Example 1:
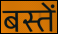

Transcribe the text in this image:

बस्तें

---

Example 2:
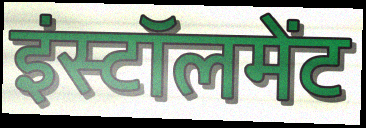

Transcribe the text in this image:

इंस्टॉलमेंट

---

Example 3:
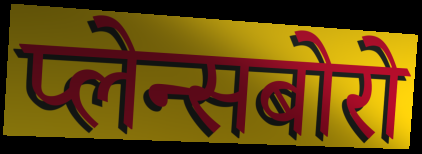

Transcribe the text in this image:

प्लेन्सबोरो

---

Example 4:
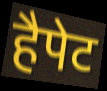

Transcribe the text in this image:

हैपेट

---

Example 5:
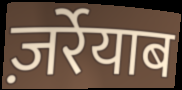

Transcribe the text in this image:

ज़र्रेयाब